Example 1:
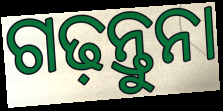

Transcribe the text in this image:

ଗଢ଼ନ୍ତୁନା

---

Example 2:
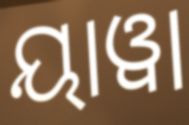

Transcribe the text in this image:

ୟାୱା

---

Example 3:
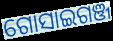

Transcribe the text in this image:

ଗୋସାଇଗଞ୍ଜ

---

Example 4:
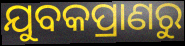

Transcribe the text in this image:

ଯୁବକପ୍ରାଣରୁ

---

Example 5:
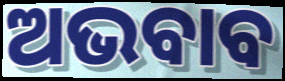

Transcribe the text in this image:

ଅଭବାବ